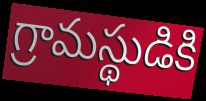
గ్రామస్థుడికి